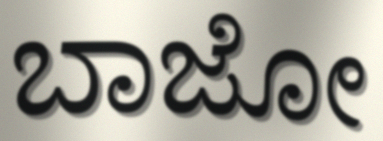
ಬಾಜೋ